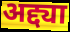
अद्द्या